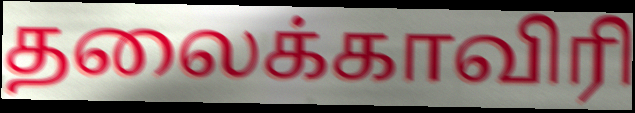
தலைக்காவிரி